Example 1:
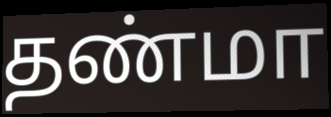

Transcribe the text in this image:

தண்மா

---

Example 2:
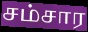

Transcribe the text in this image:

சம்சார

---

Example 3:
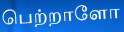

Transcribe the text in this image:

பெற்றாளோ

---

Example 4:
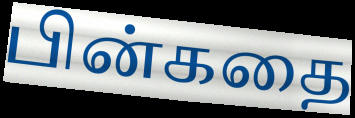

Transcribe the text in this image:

பின்கதை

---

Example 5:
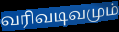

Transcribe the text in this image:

வரிவடிவமும்